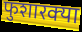
फुशारक्‍या